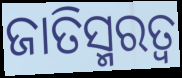
ଜାତିସ୍ମରତ୍ୱ